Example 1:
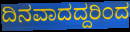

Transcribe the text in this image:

ದಿನವಾದದ್ದರಿಂದ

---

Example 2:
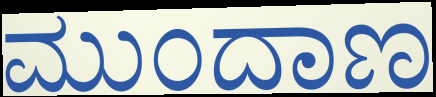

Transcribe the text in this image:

ಮುಂದಾಣ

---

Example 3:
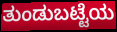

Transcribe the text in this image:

ತುಂಡುಬಟ್ಟೆಯ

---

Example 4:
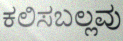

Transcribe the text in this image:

ಕಲಿಸಬಲ್ಲವು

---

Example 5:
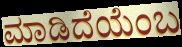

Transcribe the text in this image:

ಮಾಡಿದೆಯೆಂಬ